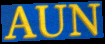
AUN